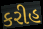
કરીહ